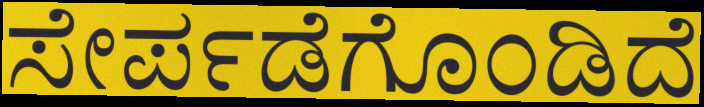
ಸೇರ್ಪಡೆಗೊಂಡಿದೆ